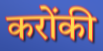
करोंकी